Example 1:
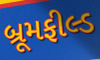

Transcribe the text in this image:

બ્રૂમફીલ્ડ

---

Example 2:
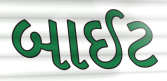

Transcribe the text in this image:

બાઈટ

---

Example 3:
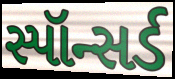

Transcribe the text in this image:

સ્પૉન્સર્ડ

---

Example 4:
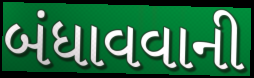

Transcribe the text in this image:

બંધાવવાની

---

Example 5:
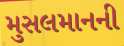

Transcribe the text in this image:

મુસલમાનની